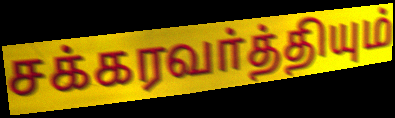
சக்கரவர்த்தியும்